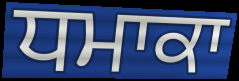
ਧਮਾਕਾ